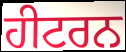
ਹੀਟਰਨ